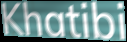
Khatibi